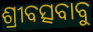
ଶ୍ରୀବତ୍ସବାବୁ